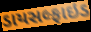
ડાયસલ્ફાઇડ